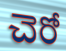
చెరో